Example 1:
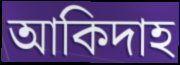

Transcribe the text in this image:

আকিদাহ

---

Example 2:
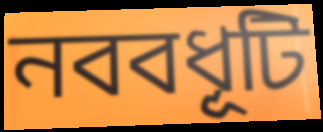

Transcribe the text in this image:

নববধূটি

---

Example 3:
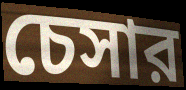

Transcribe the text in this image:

চেসার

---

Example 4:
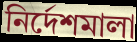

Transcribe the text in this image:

নির্দেশমালা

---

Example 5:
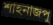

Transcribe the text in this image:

শাহনাজপু